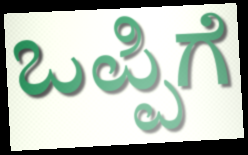
ಒಪ್ಪಿಗೆ